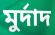
মুৰ্দাদ